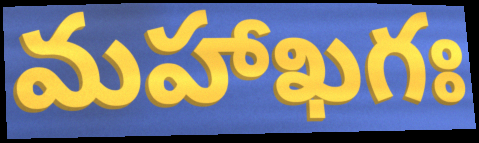
మహాఖగః